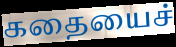
கதையைச்